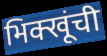
भिक्खूंची